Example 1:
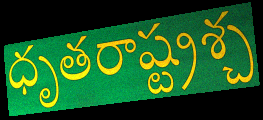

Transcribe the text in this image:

ధృతరాష్ట్రశ్చ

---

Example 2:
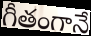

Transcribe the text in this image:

గీతంగానే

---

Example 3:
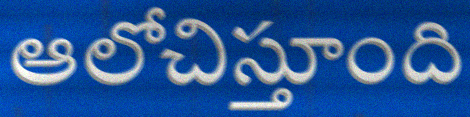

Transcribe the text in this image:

ఆలోచిస్తూంది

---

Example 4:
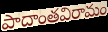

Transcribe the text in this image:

పాదాంతవిరామం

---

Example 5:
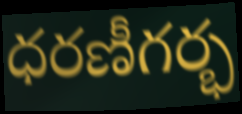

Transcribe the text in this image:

ధరణీగర్భ